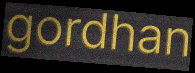
gordhan